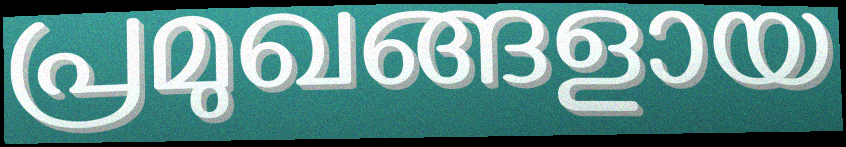
പ്രമുഖങ്ങളായ